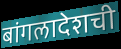
बांगलादेशची